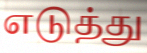
எடுத்து